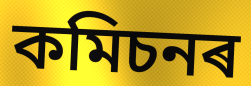
কমিচনৰ